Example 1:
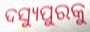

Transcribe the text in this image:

ଦସ୍ୟୁପୁରକୁ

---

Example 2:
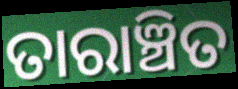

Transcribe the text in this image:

ତାରାଞ୍ଚିତ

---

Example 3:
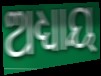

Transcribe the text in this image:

ଅଧ୍ୟାୟ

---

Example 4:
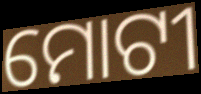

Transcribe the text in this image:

ମୋଟୀ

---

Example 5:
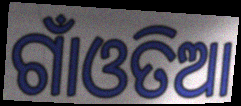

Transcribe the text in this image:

ଗାଁଓତିଆ